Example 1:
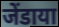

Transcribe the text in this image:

जेंडाया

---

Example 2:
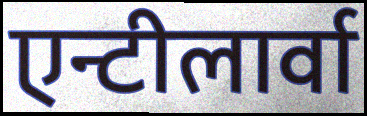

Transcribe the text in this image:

एन्टीलार्वा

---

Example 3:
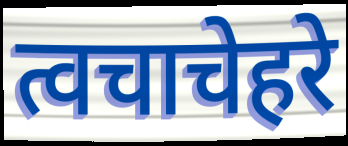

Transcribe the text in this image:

त्वचाचेहरे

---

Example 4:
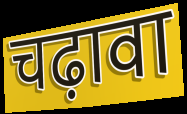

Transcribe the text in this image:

चढ़ावा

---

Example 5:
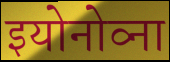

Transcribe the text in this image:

इयोनोव्ना